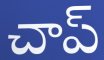
చాప్